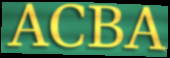
ACBA